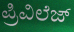
ಪ್ರಿವಿಲೆಜ್